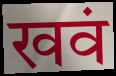
खवं